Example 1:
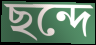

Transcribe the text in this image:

ছন্দে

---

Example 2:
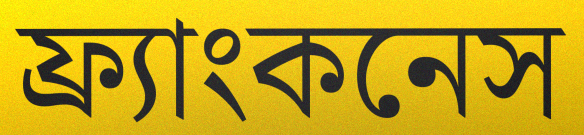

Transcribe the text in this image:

ফ্র্যাংকনেস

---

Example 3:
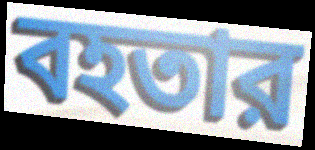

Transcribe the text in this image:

বহতার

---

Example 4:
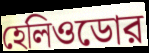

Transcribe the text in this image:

হেলিওডোর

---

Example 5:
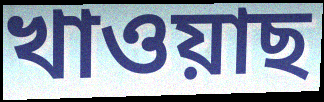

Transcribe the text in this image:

খাওয়াছ